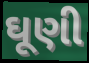
ઘૂણી